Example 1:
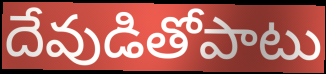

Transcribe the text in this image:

దేవుడితోపాటు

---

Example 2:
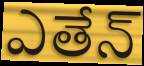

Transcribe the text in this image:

ఎతేన్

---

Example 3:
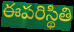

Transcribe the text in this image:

ఈపరిస్థితి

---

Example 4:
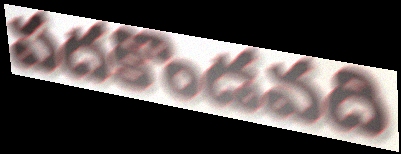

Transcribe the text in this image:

పదకొండవది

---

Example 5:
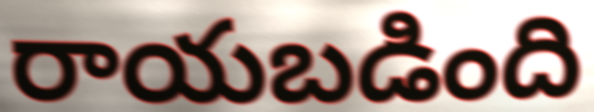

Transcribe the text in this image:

రాయబడింది